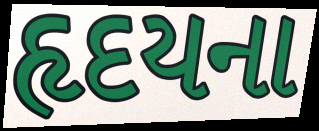
હૃદયના